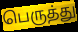
பெருத்து